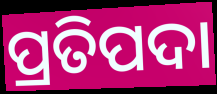
ପ୍ରତିପଦା